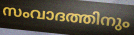
സംവാദത്തിനും